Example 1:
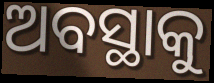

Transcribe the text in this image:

ଅବସ୍ଥାକୁ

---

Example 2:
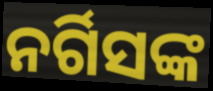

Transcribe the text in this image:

ନର୍ଗିସଙ୍କ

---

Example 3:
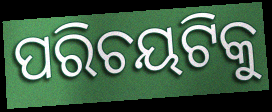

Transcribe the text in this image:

ପରିଚୟଟିକୁ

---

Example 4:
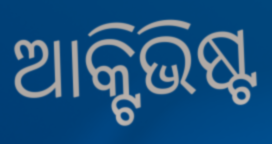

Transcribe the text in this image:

ଆକ୍ଟିଭିଷ୍ଟ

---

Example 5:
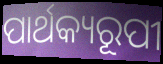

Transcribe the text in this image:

ପାର୍ଥକ୍ୟରୂପୀ